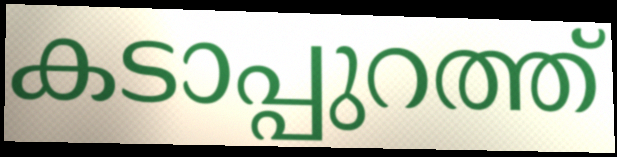
കടാപ്പുറത്ത്